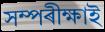
সম্পৰীক্ষাই